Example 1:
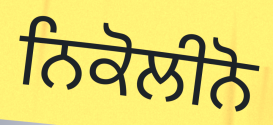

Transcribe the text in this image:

ਨਿਕੋਲੀਨੋ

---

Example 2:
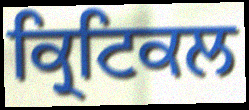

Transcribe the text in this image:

ਕ੍ਰਿਟਿਕਲ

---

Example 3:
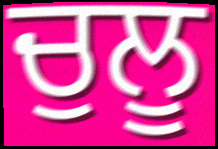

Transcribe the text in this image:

ਚੁਲੂ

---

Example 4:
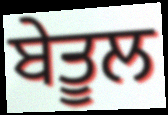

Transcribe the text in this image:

ਬੇਤੂਲ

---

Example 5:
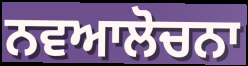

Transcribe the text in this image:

ਨਵਆਲੋਚਨਾ